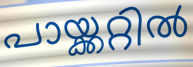
പായ്ക്കറ്റിൽ